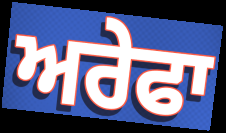
ਅਰੇਫਾ